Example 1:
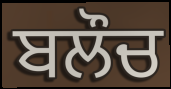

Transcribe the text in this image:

ਬਲੌਚ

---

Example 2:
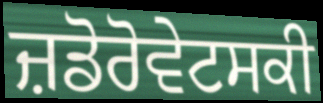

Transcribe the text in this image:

ਜ਼ਡੋਰੋਵੇਟਸਕੀ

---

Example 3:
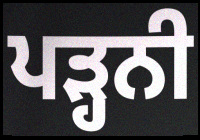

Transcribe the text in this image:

ਪੜ੍ਹਨੀ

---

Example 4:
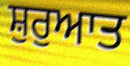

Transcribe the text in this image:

ਸ਼ੁਰੁਆਤ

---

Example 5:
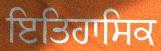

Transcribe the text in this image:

ਇਤਿਹਾਸਿਕ